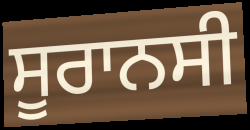
ਸੂਰਾਨਸੀ